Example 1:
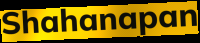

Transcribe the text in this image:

Shahanapan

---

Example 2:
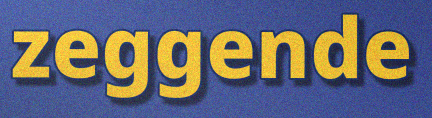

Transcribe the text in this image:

zeggende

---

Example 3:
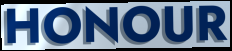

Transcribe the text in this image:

HONOUR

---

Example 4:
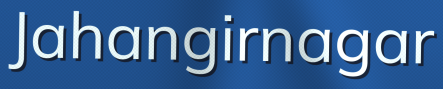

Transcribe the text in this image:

Jahangirnagar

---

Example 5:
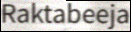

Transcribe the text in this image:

Raktabeeja